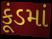
કૂંડમાં